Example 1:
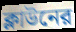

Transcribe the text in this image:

ক্লাউনের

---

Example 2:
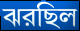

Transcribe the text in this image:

ঝরছিল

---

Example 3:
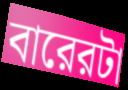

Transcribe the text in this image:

বারেরটা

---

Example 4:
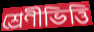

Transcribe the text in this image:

শ্রেণীভিত্তি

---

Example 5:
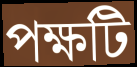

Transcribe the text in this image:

পক্ষটি